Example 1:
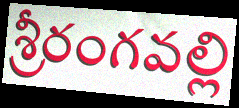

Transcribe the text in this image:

శ్రీరంగవల్లి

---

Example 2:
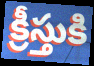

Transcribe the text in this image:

క్రీస్తుకి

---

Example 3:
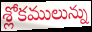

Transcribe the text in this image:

శ్లోకములున్ను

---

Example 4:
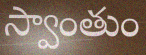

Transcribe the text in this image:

స్వాంతుం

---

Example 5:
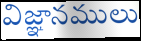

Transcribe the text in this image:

విజ్ఞానములు